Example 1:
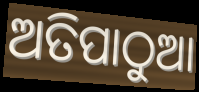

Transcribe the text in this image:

ଅତିପାଠୁଆ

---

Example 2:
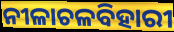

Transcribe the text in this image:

ନୀଳାଚଳବିହାରୀ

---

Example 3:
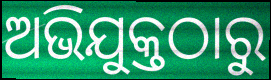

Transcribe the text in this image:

ଅଭିଯୁକ୍ତଠାରୁ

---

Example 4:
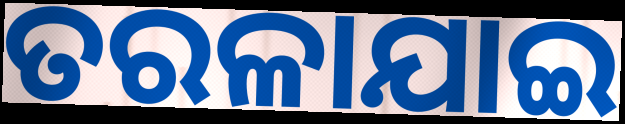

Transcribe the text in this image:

ତରଳାଯାଇ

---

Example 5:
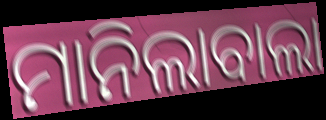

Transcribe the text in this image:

ମାନିଲାବାଲା